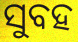
ସୁବହ